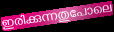
ഇരിക്കുന്നതുപോലെ